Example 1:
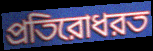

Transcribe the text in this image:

প্রতিরোধরত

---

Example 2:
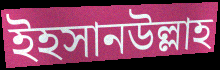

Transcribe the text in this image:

ইহসানউল্লাহ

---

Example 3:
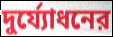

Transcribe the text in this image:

দুর্য্যোধনের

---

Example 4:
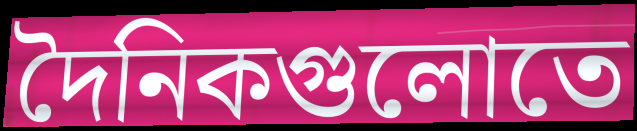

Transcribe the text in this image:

দৈনিকগুলোতে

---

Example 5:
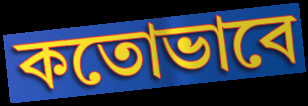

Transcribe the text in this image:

কতোভাবে